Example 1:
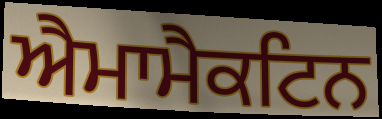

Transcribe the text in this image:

ਐਮਾਮੈਕਟਿਨ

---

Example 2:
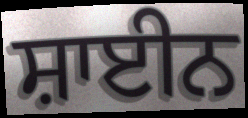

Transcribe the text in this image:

ਸ਼ਾਈਨ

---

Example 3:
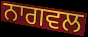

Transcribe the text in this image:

ਨਾਗਵਲ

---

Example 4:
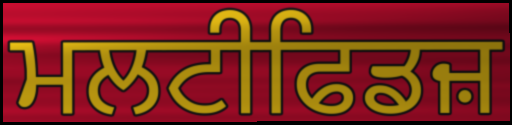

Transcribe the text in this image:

ਮਲਟੀਫਿਡਜ਼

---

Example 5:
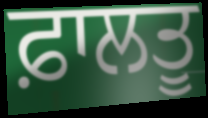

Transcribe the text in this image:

ਫ਼ਾਲਤੂ